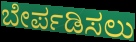
ಬೇರ್ಪಡಿಸಲು